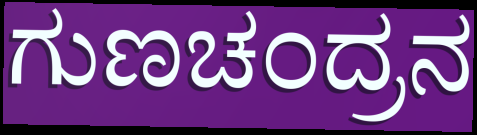
ಗುಣಚಂದ್ರನ